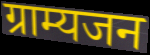
ग्राम्यजन